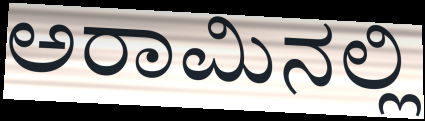
ಅರಾಮಿನಲ್ಲಿ